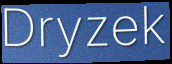
Dryzek